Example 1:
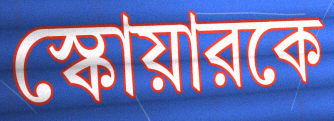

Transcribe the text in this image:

স্কোয়ারকে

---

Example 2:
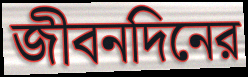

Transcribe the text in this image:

জীবনদিনের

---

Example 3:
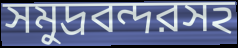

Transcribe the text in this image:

সমুদ্রবন্দরসহ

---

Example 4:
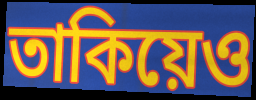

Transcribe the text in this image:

তাকিয়েও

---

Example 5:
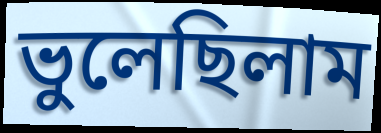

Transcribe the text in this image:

ভুলেছিলাম